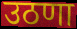
उठणा